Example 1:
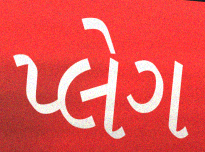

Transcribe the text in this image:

પ્લેગ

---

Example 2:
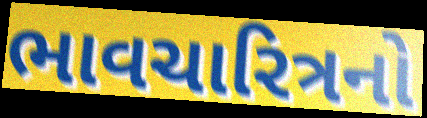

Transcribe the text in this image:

ભાવચારિત્રનો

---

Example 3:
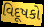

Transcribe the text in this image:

વિદૂષકો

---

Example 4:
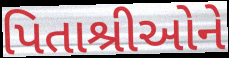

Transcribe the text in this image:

પિતાશ્રીઓને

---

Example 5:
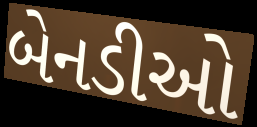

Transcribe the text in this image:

બેનડીઓ